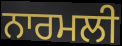
ਨਾਰਮਲੀ